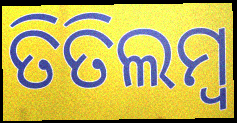
ତିତିଲମ୍ଵ